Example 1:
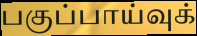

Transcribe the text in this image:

பகுப்பாய்வுக்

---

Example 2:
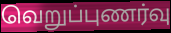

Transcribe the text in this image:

வெறுப்புணர்வு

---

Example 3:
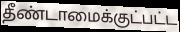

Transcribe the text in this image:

தீண்டாமைக்குட்பட்ட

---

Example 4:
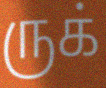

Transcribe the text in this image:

ருக்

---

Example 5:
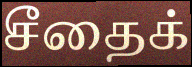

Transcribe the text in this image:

சீதைக்